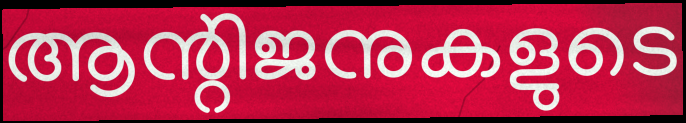
ആന്റിജനുകളുടെ